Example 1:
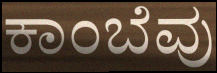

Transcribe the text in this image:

ಕಾಂಬೆವು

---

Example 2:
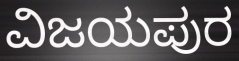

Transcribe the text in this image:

ವಿಜಯಪುರ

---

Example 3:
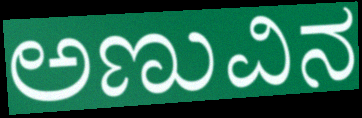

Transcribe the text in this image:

ಅಣುವಿನ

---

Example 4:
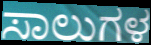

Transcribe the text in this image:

ಸಾಲುಗಳ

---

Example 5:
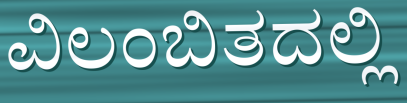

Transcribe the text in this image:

ವಿಲಂಬಿತದಲ್ಲಿ